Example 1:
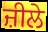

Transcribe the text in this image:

ਜ਼ੀਲੇ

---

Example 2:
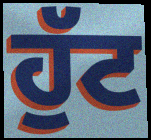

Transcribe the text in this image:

ਹੁੱਟ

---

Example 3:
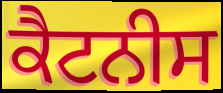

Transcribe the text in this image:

ਕੈਟਨੀਸ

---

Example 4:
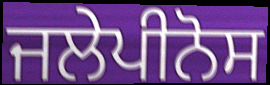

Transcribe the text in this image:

ਜਲੇਪੀਨੋਸ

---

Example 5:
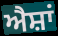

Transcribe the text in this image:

ਐਸ਼ਾਂ